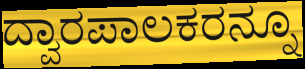
ದ್ವಾರಪಾಲಕರನ್ನೂ